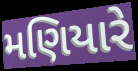
મણિયારે